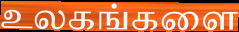
உலகங்களை